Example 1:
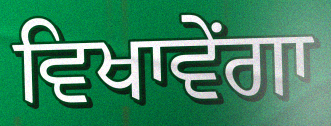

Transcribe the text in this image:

ਵਿਖਾਵੇਂਗਾ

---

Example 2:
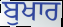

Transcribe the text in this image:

ਬੁਖਾਰ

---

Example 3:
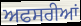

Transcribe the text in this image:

ਅਫਸਰੀਆਂ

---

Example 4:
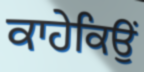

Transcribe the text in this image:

ਕਾਹੇਕਿਉਂ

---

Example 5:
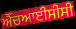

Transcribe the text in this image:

ਐੱਚਆਈਸੀਸੀ